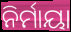
ନିର୍ମାୟା